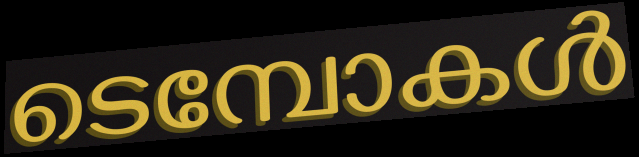
ടെമ്പോകൾ